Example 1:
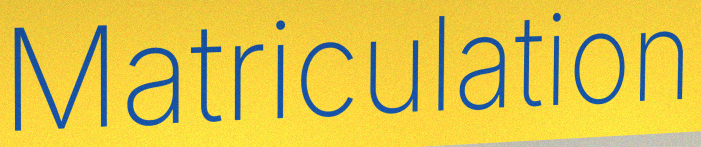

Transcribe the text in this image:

Matriculation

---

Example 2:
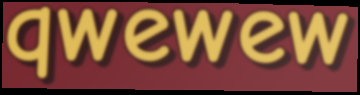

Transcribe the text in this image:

qwewew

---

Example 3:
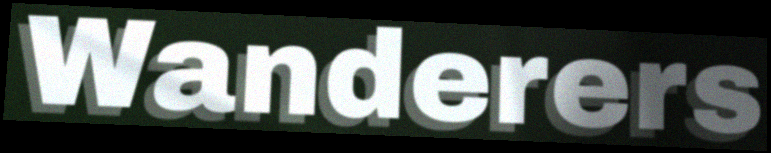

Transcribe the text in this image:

Wanderers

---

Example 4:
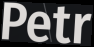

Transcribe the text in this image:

Petr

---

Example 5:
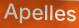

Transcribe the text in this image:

Apelles